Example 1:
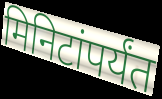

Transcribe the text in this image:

मिनिटांपर्यंत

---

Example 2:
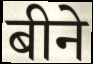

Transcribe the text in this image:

बीने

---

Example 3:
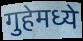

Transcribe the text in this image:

गुहेमध्ये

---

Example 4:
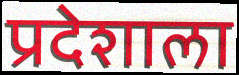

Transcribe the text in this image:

प्रदेशाला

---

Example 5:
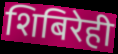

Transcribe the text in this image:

शिबिरेही